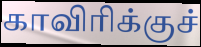
காவிரிக்குச்